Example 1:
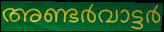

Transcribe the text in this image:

അണ്ടർവാട്ടർ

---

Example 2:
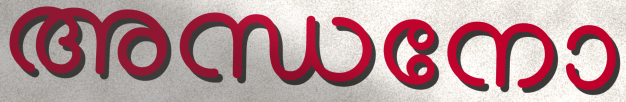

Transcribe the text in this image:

അന്ധനോ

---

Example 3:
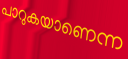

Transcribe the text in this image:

പാറുകയാണെന്ന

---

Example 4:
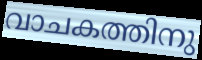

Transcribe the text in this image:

വാചകത്തിനു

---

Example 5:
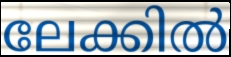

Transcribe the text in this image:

ലേക്കിൽ